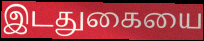
இடதுகையை